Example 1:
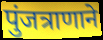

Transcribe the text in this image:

पुंजत्राणाने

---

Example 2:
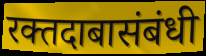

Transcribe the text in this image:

रक्तदाबासंबंधी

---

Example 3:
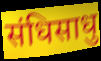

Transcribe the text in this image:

संधिसाधु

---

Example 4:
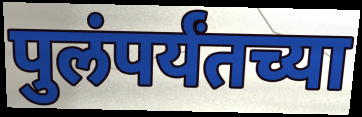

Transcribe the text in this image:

पुलंपर्यंतच्या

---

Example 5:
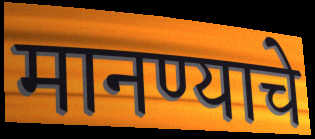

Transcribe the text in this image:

मानण्याचे